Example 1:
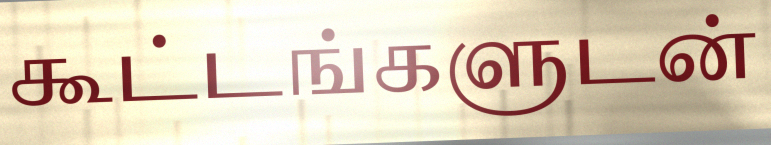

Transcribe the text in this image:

கூட்டங்களுடன்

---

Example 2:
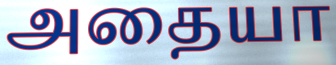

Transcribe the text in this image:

அதையா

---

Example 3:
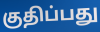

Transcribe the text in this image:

குதிப்பது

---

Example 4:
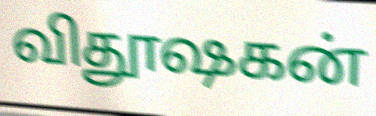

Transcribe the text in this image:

விதூஷகன்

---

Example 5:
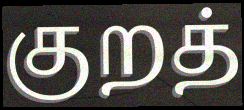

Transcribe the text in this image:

குறத்